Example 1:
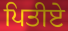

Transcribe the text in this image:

ਪਿਤੀਏ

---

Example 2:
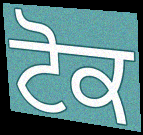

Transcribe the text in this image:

ਟੋਕ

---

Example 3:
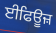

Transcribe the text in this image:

ਈਫਿਊਜ਼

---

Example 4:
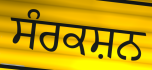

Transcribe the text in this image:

ਸੰਰਕਸ਼ਨ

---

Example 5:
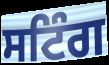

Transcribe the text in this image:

ਸਟਿੰਗ